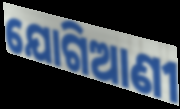
ଯୋଗିଆଣୀ